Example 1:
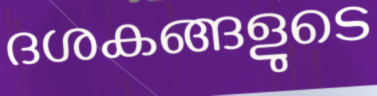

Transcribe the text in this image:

ദശകങ്ങളുടെ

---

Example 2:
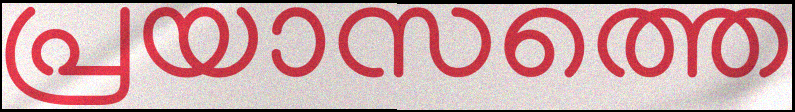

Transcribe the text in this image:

പ്രയാസത്തെ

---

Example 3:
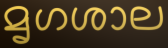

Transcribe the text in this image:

മൃഗശാല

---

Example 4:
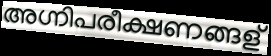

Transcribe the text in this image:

അഗ്നിപരീക്ഷണങ്ങള്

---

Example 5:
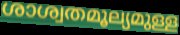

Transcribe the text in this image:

ശാശ്വതമൂല്യമുള്ള